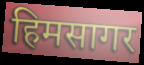
हिमसागर